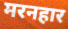
मरनहार